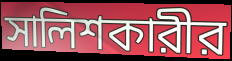
সালিশকারীর